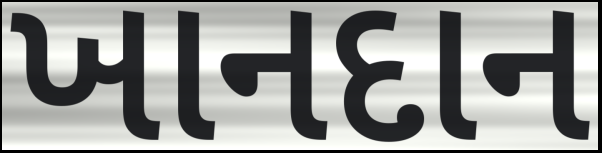
ખાનદાન